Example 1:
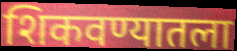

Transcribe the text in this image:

शिकवण्यातला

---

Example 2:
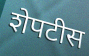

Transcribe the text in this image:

शेपटीस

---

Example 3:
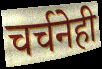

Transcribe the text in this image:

चर्चनेही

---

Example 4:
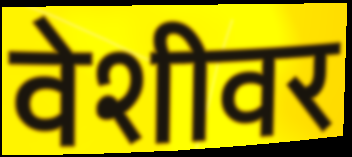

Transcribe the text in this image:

वेशीवर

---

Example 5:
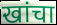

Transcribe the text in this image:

खांचा